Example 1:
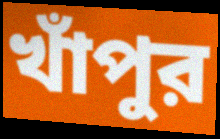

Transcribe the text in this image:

খাঁপুর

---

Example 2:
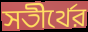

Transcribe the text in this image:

সতীর্থের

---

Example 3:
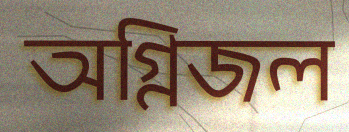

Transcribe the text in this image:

অগ্নিজল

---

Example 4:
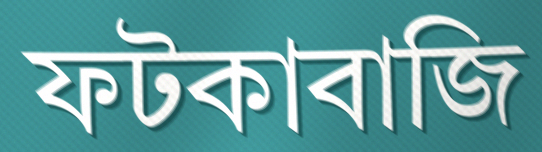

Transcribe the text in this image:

ফটকাবাজি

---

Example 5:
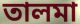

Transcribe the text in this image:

তালমা